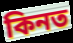
কিনত